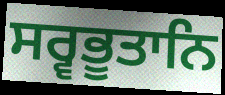
ਸਰ੍ਵਭੂਤਾਨਿ